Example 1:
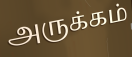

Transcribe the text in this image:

அருக்கம்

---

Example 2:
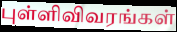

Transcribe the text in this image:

புள்ளிவிவரங்கள்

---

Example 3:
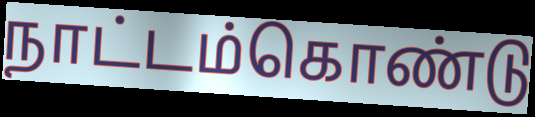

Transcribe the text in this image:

நாட்டம்கொண்டு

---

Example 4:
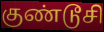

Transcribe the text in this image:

குண்டூசி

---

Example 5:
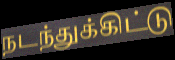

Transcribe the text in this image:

நடந்துக்கிட்டு